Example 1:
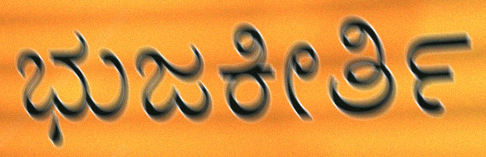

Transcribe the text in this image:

ಭುಜಕೀರ್ತಿ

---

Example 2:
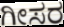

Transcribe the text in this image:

ಗೀಸರ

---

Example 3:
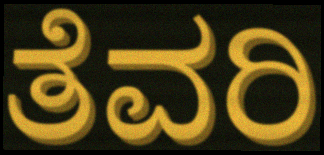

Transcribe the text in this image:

ತೆವರಿ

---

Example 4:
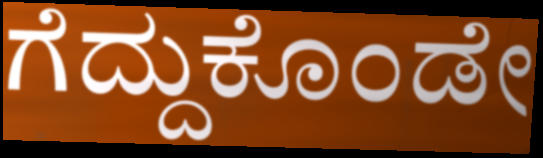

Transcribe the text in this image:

ಗೆದ್ದುಕೊಂಡೇ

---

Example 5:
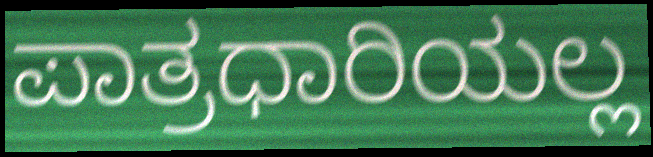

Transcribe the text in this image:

ಪಾತ್ರಧಾರಿಯಲ್ಲ